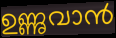
ഉണ്ണുവാൻ